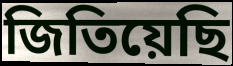
জিতিয়েছি